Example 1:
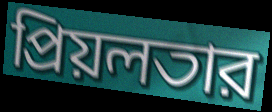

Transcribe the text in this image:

প্রিয়লতার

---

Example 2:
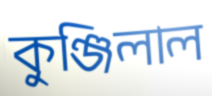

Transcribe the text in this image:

কুঞ্জিলাল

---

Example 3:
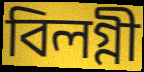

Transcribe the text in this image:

বিলগ্নী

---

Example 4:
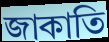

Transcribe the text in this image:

জাকাতি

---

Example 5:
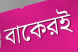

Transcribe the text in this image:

বাকেরই